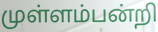
முள்ளம்பன்றி